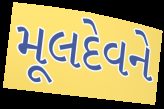
મૂલદેવને